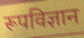
रूपविज्ञान